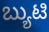
ಬ್ಯುಟಿ